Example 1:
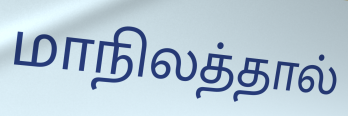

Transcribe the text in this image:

மாநிலத்தால்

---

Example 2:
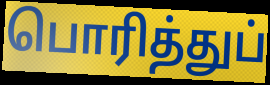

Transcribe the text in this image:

பொரித்துப்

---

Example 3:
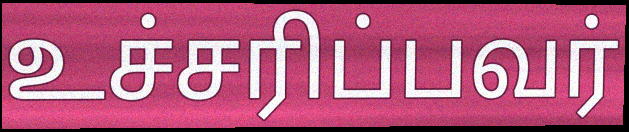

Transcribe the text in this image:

உச்சரிப்பவர்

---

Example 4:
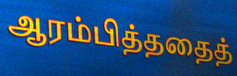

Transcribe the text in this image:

ஆரம்பித்ததைத்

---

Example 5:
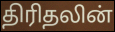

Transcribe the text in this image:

திரிதலின்